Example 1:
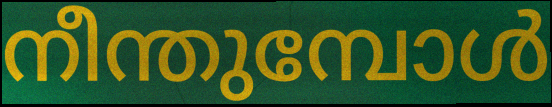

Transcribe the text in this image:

നീന്തുമ്പോൾ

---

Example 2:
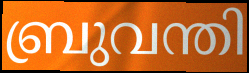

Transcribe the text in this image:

ബ്രുവന്തി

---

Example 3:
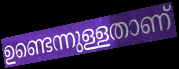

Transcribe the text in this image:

ഉണ്ടെന്നുള്ളതാണ്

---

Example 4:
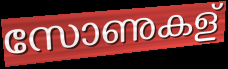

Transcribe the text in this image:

സോണുകള്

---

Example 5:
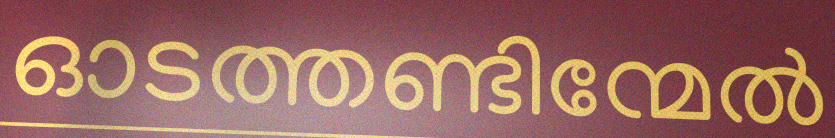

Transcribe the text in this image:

ഓടത്തണ്ടിന്മേൽ